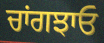
ਚਾਂਗਝਾਓ